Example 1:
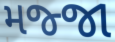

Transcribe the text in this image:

મજ્જા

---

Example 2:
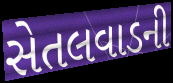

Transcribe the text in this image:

સેતલવાડની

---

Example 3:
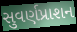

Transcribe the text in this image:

સુવર્ણપ્રાશન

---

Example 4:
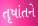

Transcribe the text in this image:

તૃષાંતને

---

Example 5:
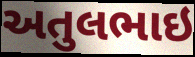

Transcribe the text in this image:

અતુલભાઇ